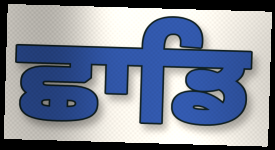
ਛਾਡਿ